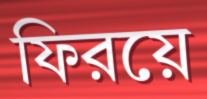
ফিরয়ে